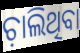
ଚ଼ାଲିଥିବା